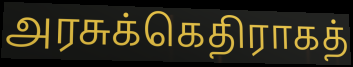
அரசுக்கெதிராகத்